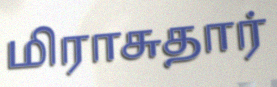
மிராசுதார்